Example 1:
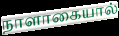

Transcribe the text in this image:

நாளாகையால்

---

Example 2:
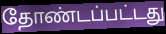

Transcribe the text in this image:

தோண்டப்பட்டது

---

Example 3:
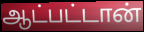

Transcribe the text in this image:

ஆட்பட்டான்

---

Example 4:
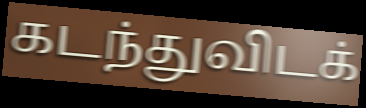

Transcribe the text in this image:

கடந்துவிடக்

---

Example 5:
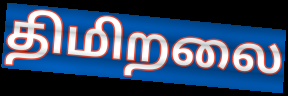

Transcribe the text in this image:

திமிறலை